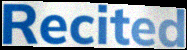
Recited